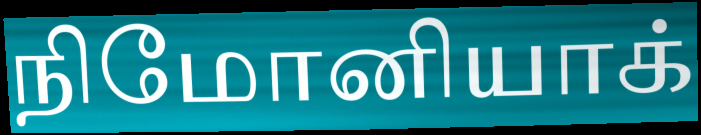
நிமோனியாக்